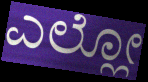
ಎಲ್ಲೋ